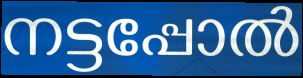
നട്ടപ്പോൽ